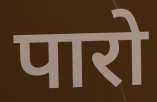
पारो